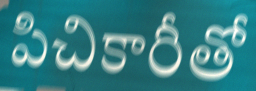
పిచికారీతో